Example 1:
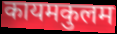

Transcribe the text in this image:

कायमकुलम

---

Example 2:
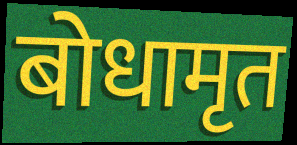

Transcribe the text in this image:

बोधामृत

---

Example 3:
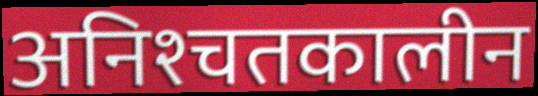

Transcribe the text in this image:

अनिश्चतकालीन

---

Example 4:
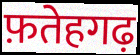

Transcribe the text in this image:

फ़तेहगढ़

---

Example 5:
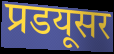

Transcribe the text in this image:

प्रडयूसर